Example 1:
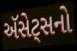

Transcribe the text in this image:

ઍસેટ્સનો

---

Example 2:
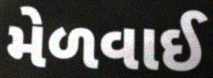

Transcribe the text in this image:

મેળવાઈ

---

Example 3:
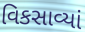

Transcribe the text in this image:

વિકસાવ્યાં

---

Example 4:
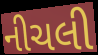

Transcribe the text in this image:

નીચલી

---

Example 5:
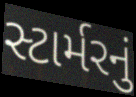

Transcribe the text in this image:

સ્ટાર્મરનું